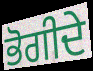
ਭੋਗੀਦੇ